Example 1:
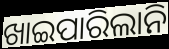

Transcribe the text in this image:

ଖାଇପାରିଲାନି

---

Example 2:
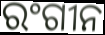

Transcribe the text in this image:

ରଂଗୀନ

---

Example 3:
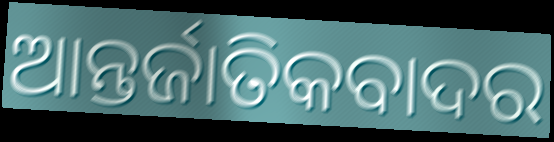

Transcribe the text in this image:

ଆନ୍ତର୍ଜାତିକବାଦର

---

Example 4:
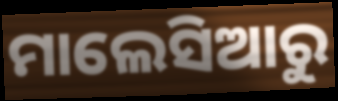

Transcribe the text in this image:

ମାଲେସିଆରୁ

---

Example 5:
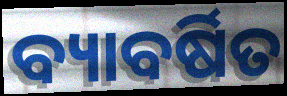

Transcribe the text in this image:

ବ୍ୟାବର୍ଷିତ